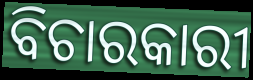
ବିଚାରକାରୀ